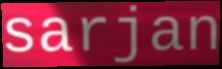
sarjan